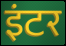
इंटर